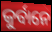
କୁର୍ବାନେ